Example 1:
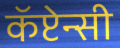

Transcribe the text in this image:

कॅप्टेन्सी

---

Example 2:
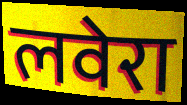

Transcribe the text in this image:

लवेरा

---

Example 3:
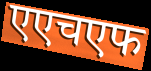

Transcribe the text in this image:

एएचएफ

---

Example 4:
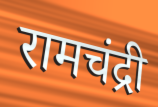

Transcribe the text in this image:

रामचंद्री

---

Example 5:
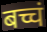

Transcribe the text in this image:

बच्चं